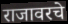
राजावरचे